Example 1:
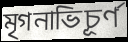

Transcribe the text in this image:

মৃগনাভিচূর্ণ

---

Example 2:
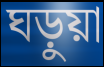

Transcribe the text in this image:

ঘড়ুয়া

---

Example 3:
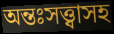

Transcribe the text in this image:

অন্তঃসত্ত্বাসহ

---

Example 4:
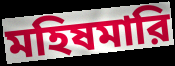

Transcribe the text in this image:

মহিষমারি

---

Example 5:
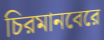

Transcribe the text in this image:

চিরমানবেরে